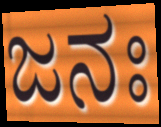
ಜನಃ